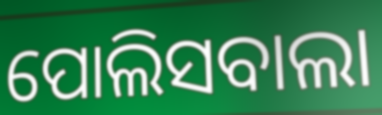
ପୋଲିସବାଲା